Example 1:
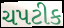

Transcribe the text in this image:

ચપટીક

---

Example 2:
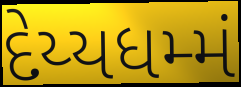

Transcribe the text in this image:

દેય્યધમ્મં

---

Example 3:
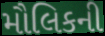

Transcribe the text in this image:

મૌલિકની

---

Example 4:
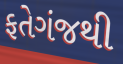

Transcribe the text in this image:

ફતેગંજથી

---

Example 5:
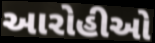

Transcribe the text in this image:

આરોહીઓ